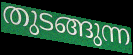
തുടങ്ങുന്ന